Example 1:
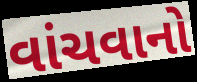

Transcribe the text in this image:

વાંચવાનો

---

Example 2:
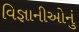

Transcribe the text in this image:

વિજ્ઞાનીઓનું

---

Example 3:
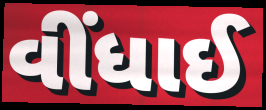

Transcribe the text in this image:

વીંધાઈ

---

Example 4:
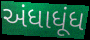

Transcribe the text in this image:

અંધાધૂંધ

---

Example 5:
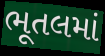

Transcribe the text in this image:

ભૂતલમાં